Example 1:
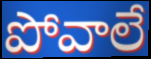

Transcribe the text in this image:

పోవాలే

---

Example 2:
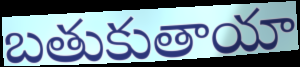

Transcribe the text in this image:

బతుకుతాయా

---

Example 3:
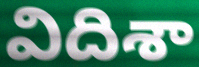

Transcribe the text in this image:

విదిశా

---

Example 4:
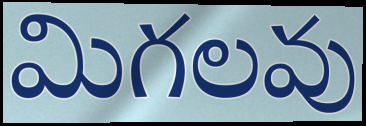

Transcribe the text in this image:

మిగలవు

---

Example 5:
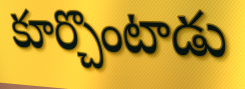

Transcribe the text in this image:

కూర్చొంటాడు